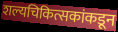
शल्यचिकित्सकांकडून